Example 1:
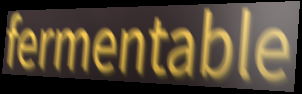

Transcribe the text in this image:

fermentable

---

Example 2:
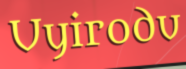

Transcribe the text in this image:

Uyirodu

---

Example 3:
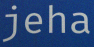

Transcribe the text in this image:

jeha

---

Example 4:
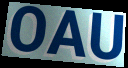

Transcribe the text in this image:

OAU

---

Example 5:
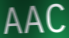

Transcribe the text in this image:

AAC